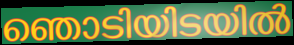
ഞൊടിയിടയിൽ